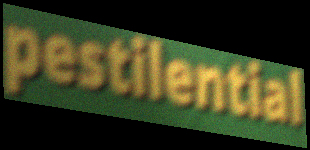
pestilential